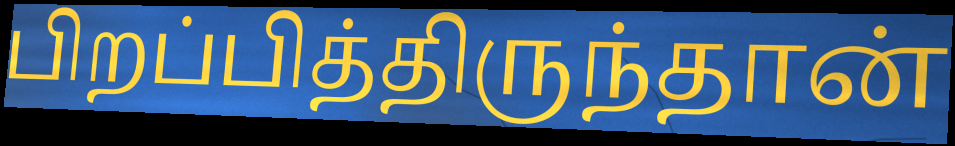
பிறப்பித்திருந்தான்